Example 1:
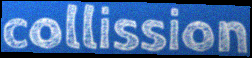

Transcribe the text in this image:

collission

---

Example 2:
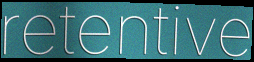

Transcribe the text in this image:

retentive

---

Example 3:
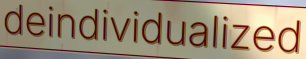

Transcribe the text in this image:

deindividualized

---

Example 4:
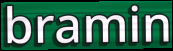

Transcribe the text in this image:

bramin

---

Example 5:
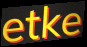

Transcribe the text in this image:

etke